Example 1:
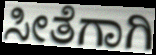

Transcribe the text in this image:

ಸೀತೆಗಾಗಿ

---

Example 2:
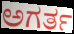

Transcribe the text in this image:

ಅಗರ್ತ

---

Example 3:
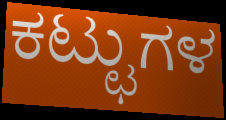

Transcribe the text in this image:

ಕಟ್ಟುಗಳ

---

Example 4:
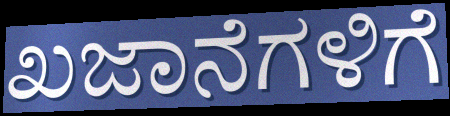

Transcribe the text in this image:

ಖಜಾನೆಗಳಿಗೆ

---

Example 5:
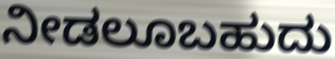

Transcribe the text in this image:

ನೀಡಲೂಬಹುದು